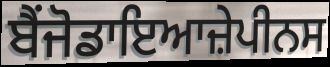
ਬੈਂਜੋਡਾਇਆਜ਼ੇਪੀਨਸ